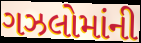
ગઝલોમાંની